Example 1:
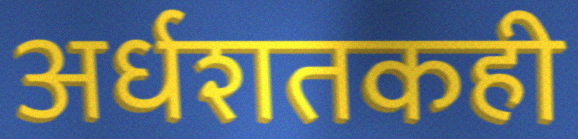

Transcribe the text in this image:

अर्धशतकही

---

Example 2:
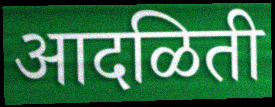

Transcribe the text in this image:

आदळिती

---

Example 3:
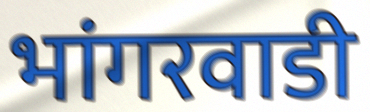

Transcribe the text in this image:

भांगरवाडी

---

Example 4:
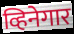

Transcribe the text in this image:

व्हिनेगार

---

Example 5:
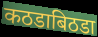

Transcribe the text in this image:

कठडाबिठडा